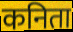
कनिता